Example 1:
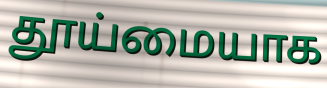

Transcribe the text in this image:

தூய்மையாக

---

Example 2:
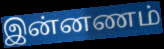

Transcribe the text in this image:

இன்னணம்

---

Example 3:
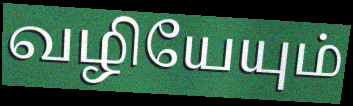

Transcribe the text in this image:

வழியேயும்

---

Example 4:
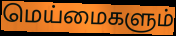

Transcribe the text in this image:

மெய்மைகளும்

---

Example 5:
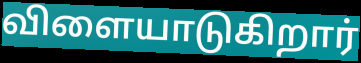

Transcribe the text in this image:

விளையாடுகிறார்